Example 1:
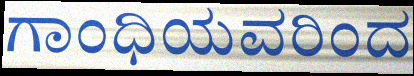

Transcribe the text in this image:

ಗಾಂಧಿಯವರಿಂದ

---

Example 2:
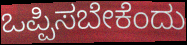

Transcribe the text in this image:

ಒಪ್ಪಿಸಬೇಕೆಂದು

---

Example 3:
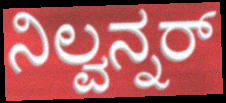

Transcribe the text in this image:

ನಿಲ್ವನ್ನರ್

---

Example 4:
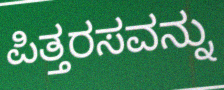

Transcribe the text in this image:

ಪಿತ್ತರಸವನ್ನು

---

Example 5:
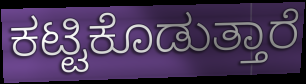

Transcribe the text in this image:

ಕಟ್ಟಿಕೊಡುತ್ತಾರೆ